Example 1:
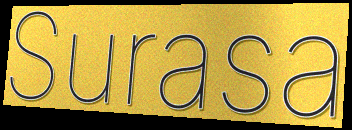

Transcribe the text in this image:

Surasa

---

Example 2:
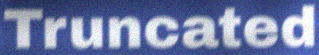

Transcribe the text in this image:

Truncated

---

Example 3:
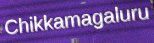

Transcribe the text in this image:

Chikkamagaluru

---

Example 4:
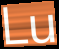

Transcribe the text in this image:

Lu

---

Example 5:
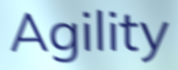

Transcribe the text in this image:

Agility